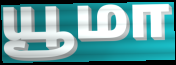
யூமா